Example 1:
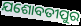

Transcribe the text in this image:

ଯଶୋବତୀପୁର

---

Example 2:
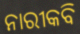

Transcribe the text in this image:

ନାରୀକବି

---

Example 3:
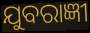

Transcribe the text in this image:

ଯୁବରାଜ୍ଞୀ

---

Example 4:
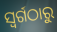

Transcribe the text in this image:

ସ୍ଵର୍ଗଠାରୁ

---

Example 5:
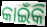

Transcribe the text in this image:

କାଇଁକି